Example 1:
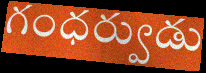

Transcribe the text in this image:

గంధర్వుడు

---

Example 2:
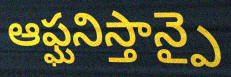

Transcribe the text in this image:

ఆఫ్ఘనిస్తాన్పై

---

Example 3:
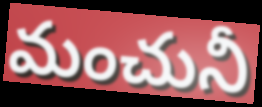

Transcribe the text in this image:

మంచునీ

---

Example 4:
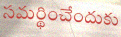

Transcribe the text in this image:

సమర్థించేందుకు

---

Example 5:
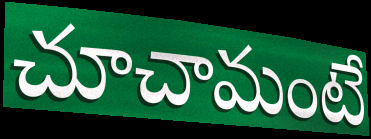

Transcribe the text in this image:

చూచామంటే